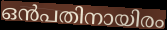
ഒൻപതിനായിരം